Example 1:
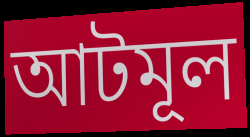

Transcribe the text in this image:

আটমূল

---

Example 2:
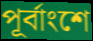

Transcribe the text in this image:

পূর্বাংশে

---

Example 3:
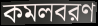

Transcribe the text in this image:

কমলবরণ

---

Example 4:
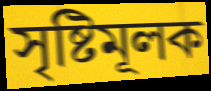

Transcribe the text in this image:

সৃষ্টিমূলক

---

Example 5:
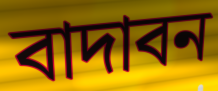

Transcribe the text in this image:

বাদাবন